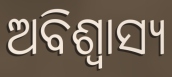
ଅବିଶ୍ଵାସ୍ୟ